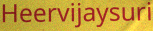
Heervijaysuri